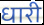
धारी